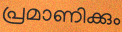
പ്രമാണിക്കും